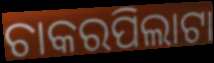
ଚାକରପିଲାଟା